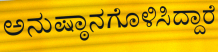
ಅನುಷ್ಠಾನಗೊಳಿಸಿದ್ದಾರೆ